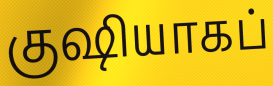
குஷியாகப்